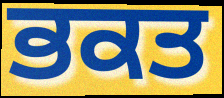
ਭਕਤ